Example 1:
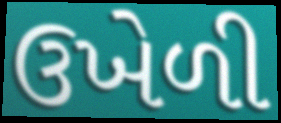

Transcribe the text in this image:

ઉખેળી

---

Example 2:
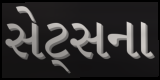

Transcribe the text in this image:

સેટ્સના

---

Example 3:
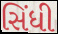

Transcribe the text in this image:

સિંધી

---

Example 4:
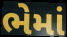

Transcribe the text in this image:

ભેમાં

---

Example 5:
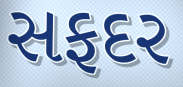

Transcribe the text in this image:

સફદર